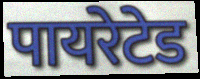
पायरेटेड